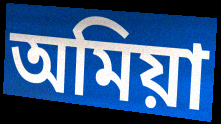
অমিয়া